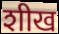
शीख